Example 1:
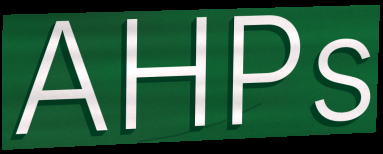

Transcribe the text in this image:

AHPs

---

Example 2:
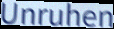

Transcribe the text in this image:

Unruhen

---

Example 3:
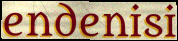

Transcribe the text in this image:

endenisi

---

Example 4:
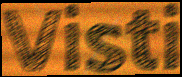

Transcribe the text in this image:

Visti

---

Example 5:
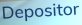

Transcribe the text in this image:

Depositor